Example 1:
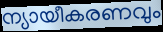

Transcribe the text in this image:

ന്യായീകരണവും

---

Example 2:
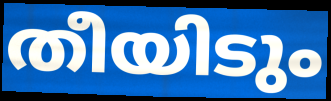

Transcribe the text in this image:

തീയിടും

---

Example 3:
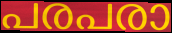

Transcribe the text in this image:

പരപരാ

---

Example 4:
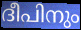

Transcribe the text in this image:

ദീപിനും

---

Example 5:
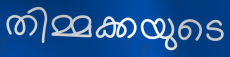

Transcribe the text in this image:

തിമ്മക്കയുടെ